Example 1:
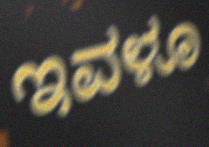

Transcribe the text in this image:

ಇವಳೂ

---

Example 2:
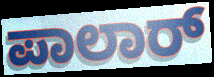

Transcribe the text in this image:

ಪಾಲಾರ್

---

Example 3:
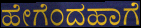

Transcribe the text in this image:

ಹೇಗೆಂದಹಾಗೆ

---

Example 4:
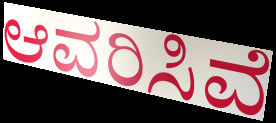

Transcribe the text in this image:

ಆವರಿಸಿವೆ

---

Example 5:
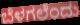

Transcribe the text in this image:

ಬೆಳಗಲೆಂದು